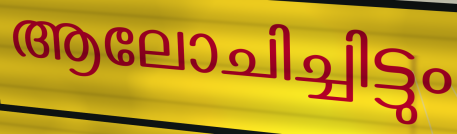
ആലോചിച്ചിട്ടും